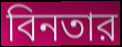
বিনতার